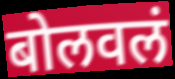
बोलवलं